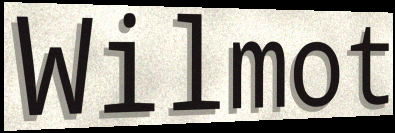
Wilmot